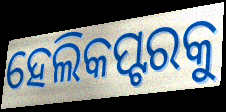
ହେଲିକପ୍ଟରକୁ